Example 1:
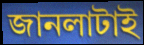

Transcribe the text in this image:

জানলাটাই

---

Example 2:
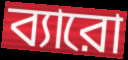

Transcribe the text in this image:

ব্যারো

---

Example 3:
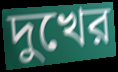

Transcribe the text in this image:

দুখের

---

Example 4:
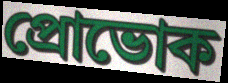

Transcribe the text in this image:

প্রোভোক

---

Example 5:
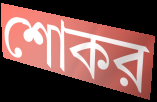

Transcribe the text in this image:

শোকর